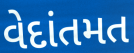
વેદાંતમત